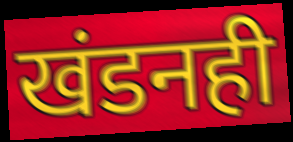
खंडनही